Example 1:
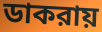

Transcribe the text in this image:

ডাকরায়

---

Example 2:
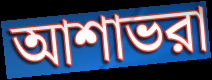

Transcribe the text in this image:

আশাভরা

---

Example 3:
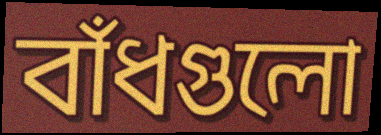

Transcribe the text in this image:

বাঁধগুলো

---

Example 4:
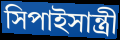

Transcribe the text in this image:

সিপাইসান্ত্রী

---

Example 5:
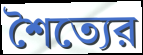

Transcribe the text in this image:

শৈত্যের